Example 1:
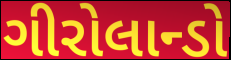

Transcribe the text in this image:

ગીરોલાન્ડો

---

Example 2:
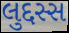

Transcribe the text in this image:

લુદ્દસ્સ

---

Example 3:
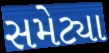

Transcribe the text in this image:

સમેટ્યા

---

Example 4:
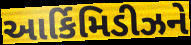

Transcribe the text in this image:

આર્કિમિડીઝને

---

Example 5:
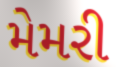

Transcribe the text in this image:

મેમરી